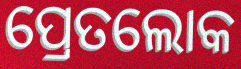
ପ୍ରେତଲୋକ